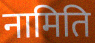
नामिति